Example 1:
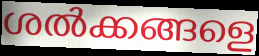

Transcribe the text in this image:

ശൽക്കങ്ങളെ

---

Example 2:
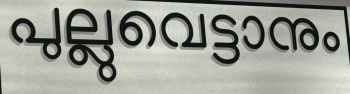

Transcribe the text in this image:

പുല്ലുവെട്ടാനും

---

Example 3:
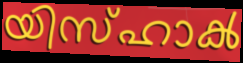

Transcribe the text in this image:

യിസ്ഹാൿ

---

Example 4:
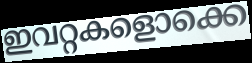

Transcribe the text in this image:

ഇവറ്റകളൊക്കെ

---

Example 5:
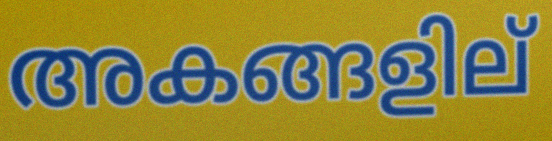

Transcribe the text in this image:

അകങ്ങളില്